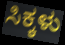
ಸಿಕ್ಕಳು